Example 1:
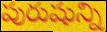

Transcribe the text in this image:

పురుషున్ని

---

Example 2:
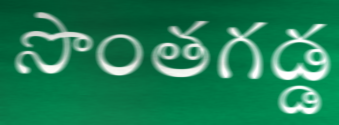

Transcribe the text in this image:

సొంతగడ్డ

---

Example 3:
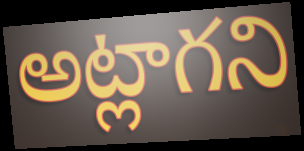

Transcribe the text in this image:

అట్లాగని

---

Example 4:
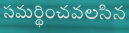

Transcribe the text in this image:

సమర్థించవలసిన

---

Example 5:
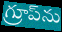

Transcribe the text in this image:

గ్రూప్‌ను